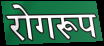
रोगरूप